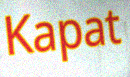
Kapat